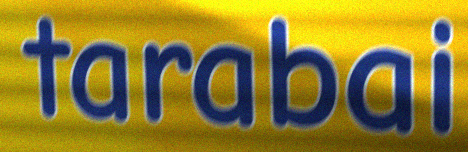
tarabai